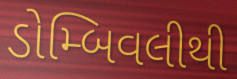
ડોમ્બિવલીથી